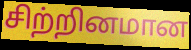
சிற்றினமான